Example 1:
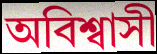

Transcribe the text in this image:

অবিশ্বাসী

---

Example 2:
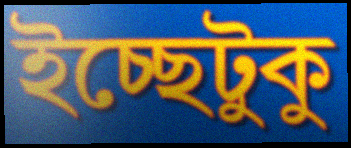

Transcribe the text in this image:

ইচ্ছেটুকু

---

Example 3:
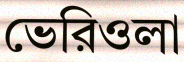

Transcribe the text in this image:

ভেরিওলা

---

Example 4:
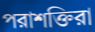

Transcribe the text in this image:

পরাশক্তিরা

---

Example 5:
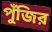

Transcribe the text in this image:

পুঁজির